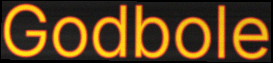
Godbole